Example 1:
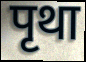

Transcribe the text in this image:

पृथा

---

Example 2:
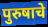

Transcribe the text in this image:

पुरुषाचे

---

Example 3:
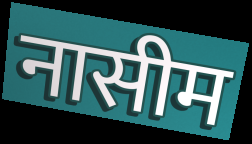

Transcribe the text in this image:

नासीम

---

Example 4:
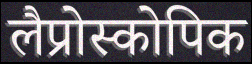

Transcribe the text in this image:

लैप्रोस्कोपिक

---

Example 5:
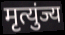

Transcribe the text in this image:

मृत्युंज्य